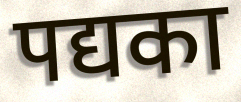
पद्यका